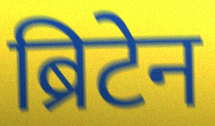
ब्रिटेन